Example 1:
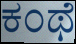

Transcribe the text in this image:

ಕಂಥೆ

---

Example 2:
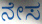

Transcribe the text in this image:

ನೇಸ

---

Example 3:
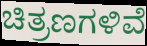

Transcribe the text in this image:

ಚಿತ್ರಣಗಳಿವೆ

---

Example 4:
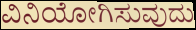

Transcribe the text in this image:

ವಿನಿಯೋಗಿಸುವುದು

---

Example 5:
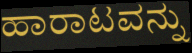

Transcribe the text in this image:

ಹಾರಾಟವನ್ನು